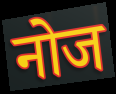
नोज